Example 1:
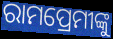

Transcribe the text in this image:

ରାମପ୍ରେମୀଙ୍କୁ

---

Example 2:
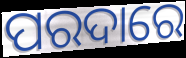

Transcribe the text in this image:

ପରଦାରେ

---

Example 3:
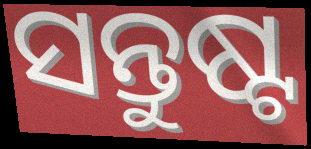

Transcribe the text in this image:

ସନ୍ତୁଷ୍ଟ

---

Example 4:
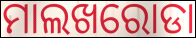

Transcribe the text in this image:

ମାଲଖରୋଡା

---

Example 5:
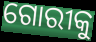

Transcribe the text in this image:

ଗୋରୀକୁ